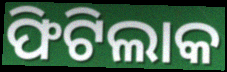
ଫିଟିଲାକ